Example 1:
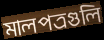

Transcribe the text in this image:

মালপত্রগুলি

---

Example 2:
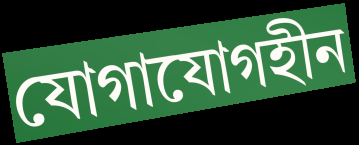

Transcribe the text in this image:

যোগাযোগহীন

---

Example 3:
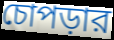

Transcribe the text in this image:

চোপড়ার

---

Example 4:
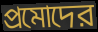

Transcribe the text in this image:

প্রমোদের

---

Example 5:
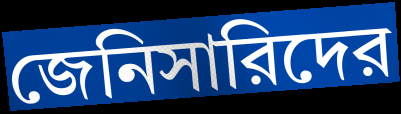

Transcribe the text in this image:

জেনিসারিদের